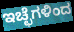
ಇಚ್ಛೆಗಳಿಂದ